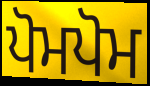
ਪੋਮਪੋਮ